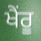
ਖੈਂਰੂ